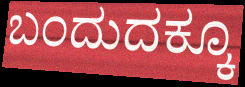
ಬಂದುದಕ್ಕೂ